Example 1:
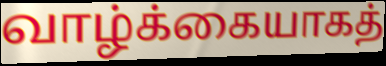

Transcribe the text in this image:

வாழ்க்கையாகத்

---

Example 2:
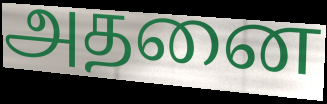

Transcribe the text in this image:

அதனை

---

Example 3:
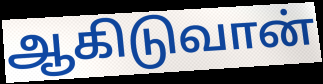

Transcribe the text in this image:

ஆகிடுவான்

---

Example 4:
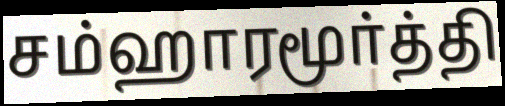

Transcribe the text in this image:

சம்ஹாரமூர்த்தி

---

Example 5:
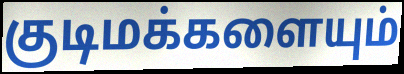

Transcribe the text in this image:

குடிமக்களையும்